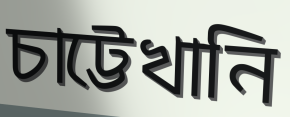
চাট্টেখানি